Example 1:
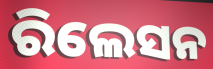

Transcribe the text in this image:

ରିଲେସନ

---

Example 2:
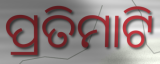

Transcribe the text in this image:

ପ୍ରତିମାଟି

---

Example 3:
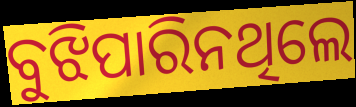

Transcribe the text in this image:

ବୁଝିପାରିନଥିଲେ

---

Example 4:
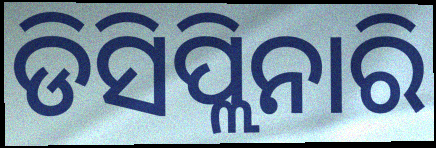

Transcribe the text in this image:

ଡିସିପ୍ଲିନାରି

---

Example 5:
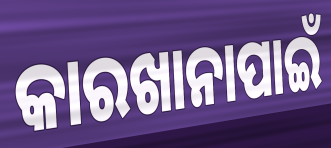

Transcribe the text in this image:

କାରଖାନାପାଇଁ